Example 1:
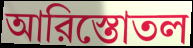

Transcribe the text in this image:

আরিস্তোতল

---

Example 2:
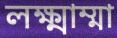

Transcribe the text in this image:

লক্ষ্মাম্মা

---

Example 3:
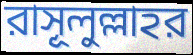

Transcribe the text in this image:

রাসূলুল্লাহর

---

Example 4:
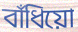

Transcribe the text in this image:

বাঁধিয়ো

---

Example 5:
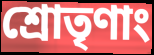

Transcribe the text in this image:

শ্রোতৃণাং